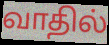
வாதில்